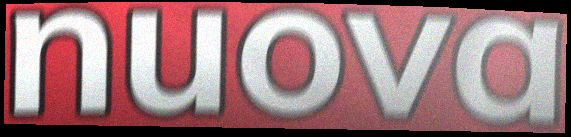
nuova